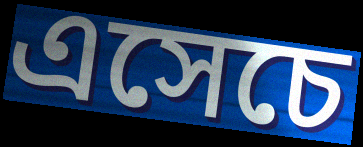
এসেচে